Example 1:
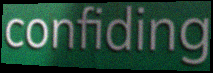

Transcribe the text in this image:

confiding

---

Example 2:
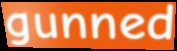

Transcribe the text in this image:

gunned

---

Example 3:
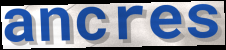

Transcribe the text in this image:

ancres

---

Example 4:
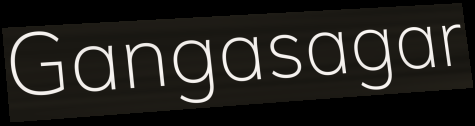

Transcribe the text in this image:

Gangasagar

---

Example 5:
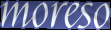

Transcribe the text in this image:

moreso